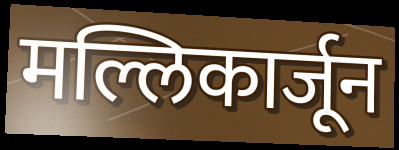
मल्लिकार्जून